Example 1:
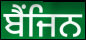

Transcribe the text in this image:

ਬੈਂਜਿਨ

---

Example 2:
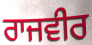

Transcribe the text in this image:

ਰਾਜਵੀਰ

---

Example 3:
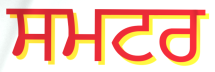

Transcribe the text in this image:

ਸਮਟਰ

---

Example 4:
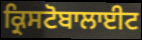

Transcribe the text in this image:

ਕ੍ਰਿਸਟੋਬਾਲਾਈਟ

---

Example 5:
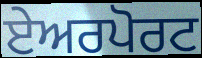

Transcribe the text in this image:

ਏਅਰਪੋਰਟ